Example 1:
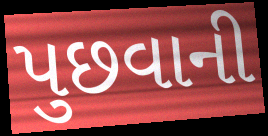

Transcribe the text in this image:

પુછવાની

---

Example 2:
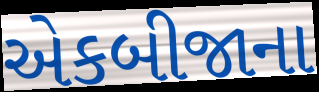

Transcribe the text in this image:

એકબીજાના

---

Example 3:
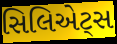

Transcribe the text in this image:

સિલિએટ્સ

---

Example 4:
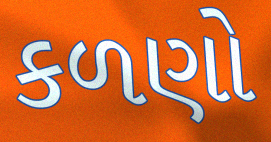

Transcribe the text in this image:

કળણો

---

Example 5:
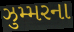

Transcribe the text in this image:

ઝુમ્મરના